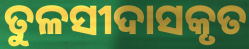
ତୁଳସୀଦାସକୃତ